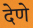
देणे